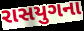
રાસયુગના